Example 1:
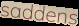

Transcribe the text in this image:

saddens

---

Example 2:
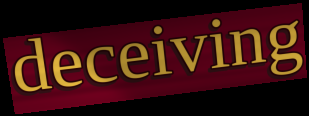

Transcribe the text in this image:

deceiving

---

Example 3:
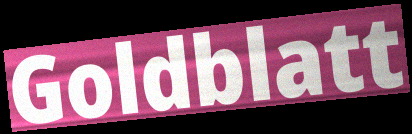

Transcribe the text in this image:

Goldblatt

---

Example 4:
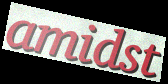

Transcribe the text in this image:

amidst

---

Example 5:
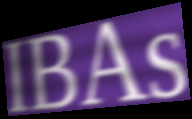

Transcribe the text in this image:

IBAs